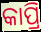
କାପ୍ରି